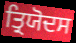
ਤ੍ਰਿਯੋਦਸ